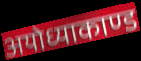
अयोध्याकाण्ड